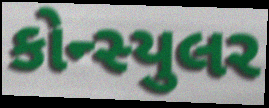
કોન્સ્યુલર